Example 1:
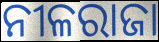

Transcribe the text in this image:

ନୀଳରାଜା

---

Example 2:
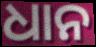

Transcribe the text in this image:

ଧାନ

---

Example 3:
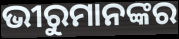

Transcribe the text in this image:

ଭୀରୁମାନଙ୍କର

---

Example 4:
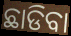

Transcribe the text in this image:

ଛାଡିବା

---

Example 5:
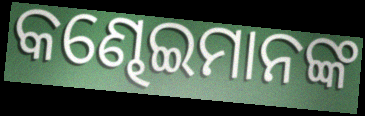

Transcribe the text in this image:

କଣ୍ଢେଇମାନଙ୍କ